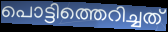
പൊട്ടിത്തെറിച്ചത്